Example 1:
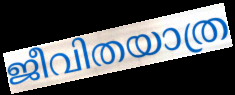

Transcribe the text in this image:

ജീവിതയാത്ര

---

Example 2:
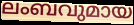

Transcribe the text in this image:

ലംബവുമായ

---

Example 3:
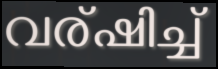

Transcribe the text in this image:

വര്ഷിച്ച്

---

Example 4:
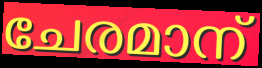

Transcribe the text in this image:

ചേരമാന്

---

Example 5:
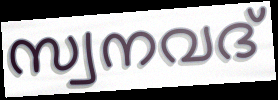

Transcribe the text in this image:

സ്വനവദ്